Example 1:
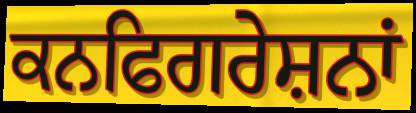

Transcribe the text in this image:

ਕਨਫਿਗਰੇਸ਼ਨਾਂ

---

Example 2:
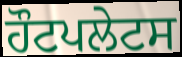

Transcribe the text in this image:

ਹੌਟਪਲੇਟਸ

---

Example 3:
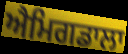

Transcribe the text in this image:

ਐਮਿਗਡਾਲਾ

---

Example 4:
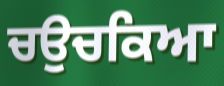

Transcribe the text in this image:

ਚਉਚਕਿਆ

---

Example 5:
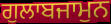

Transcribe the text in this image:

ਗੁਲਾਬਜਾਮੁਨ